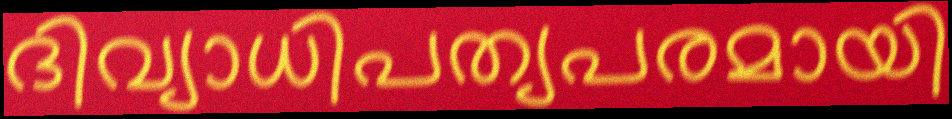
ദിവ്യാധിപത്യപരമായി